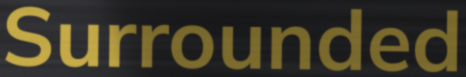
Surrounded